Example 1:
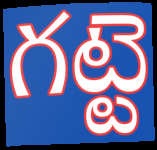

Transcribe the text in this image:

గట్టె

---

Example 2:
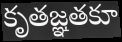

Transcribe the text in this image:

కృతజ్ఞతకూ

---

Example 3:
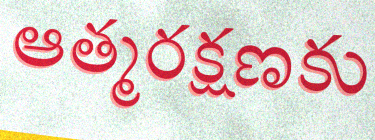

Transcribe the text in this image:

ఆత్మరక్షణకు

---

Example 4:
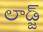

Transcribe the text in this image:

లాడ్జ్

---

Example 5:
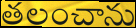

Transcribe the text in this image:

తలంచాను